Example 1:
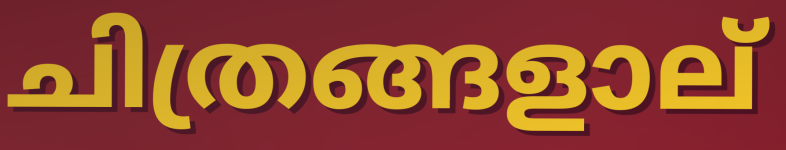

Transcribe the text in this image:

ചിത്രങ്ങളാല്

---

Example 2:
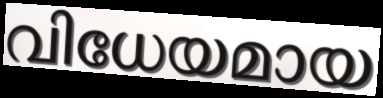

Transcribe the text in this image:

വിധേയമായ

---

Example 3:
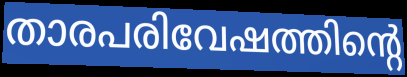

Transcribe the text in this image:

താരപരിവേഷത്തിന്റെ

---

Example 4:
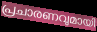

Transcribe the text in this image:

പ്രചാരണവുമായി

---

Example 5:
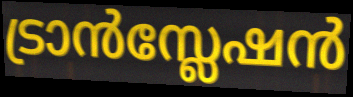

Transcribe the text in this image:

ട്രാൻസ്ലേഷൻ